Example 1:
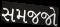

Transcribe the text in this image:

સમજજો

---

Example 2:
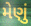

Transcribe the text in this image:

મેણું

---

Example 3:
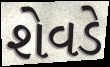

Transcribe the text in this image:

શેવડે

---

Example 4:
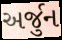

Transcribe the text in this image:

અર્જુન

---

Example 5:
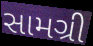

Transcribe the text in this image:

સામગ્રી